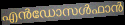
എൻഡോസൾഫാൻ